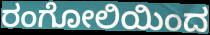
ರಂಗೋಲಿಯಿಂದ